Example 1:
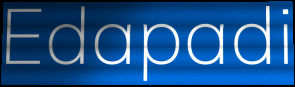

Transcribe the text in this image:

Edapadi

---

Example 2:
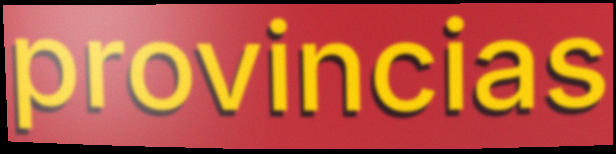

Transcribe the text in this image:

provincias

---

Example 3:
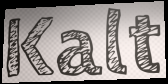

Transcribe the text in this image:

Kalt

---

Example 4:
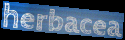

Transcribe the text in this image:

herbacea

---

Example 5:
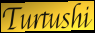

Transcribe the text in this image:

Turtushi